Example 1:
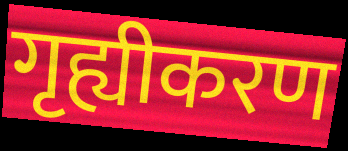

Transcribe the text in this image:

गृह्यीकरण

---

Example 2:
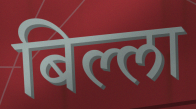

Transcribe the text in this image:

बिल्ला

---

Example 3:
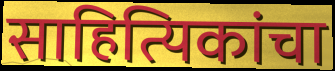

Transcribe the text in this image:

साहित्यिकांचा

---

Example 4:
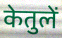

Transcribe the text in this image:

केतुलें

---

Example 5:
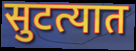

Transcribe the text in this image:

सुटत्यात